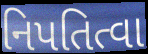
નિપતિત્વા